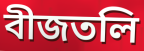
বীজতলি